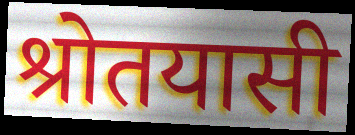
श्रोतयासी